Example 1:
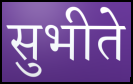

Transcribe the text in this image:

सुभीते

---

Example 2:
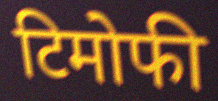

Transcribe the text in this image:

टिमोफी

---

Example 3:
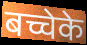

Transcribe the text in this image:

बच्चेके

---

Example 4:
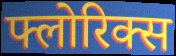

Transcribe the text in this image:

फ्लोरिक्स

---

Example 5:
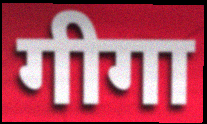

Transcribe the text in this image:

गीगा